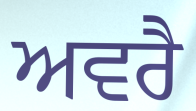
ਅਵਰੈ